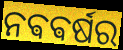
ନଵଵର୍ଷର